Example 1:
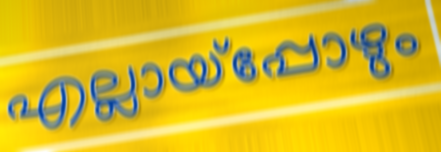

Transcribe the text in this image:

എല്ലായ്പ്പോഴും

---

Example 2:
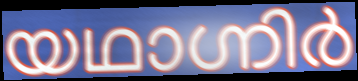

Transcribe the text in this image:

യഥാഗ്നിർ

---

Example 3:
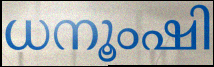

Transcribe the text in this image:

ധനൂംഷി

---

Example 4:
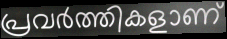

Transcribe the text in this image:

പ്രവർത്തികളാണ്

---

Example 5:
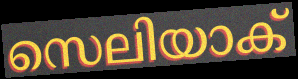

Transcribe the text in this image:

സെലിയാക്